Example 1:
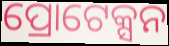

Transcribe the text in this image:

ପ୍ରୋଟେକ୍ସନ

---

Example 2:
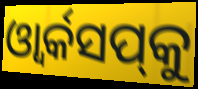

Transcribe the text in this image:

ଓ୍ୱାର୍କସପ୍‌କୁ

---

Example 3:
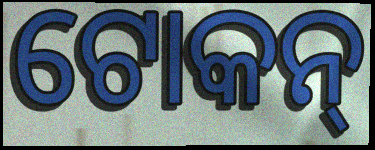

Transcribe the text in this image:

ଟୋକନ୍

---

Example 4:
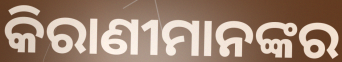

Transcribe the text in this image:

କିରାଣୀମାନଙ୍କର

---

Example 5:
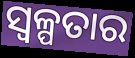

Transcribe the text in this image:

ସ୍ଵଳ୍ପତାର